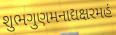
શુભગુણમનાદ્યક્ષરમહં